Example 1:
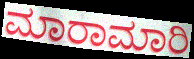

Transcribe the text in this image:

ಮಾರಾಮಾರಿ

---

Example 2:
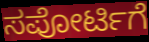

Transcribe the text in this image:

ಸಪೋರ್ಟಿಗೆ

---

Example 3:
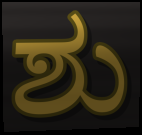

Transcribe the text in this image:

ಶು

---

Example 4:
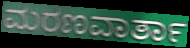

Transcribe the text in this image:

ಮರಣವಾರ್ತಾ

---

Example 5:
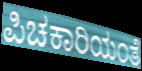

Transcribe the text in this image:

ಪಿಚಕಾರಿಯಂತೆ